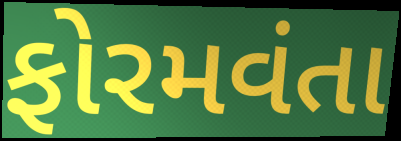
ફોરમવંતા